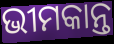
ଭୀମକାନ୍ତ